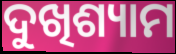
ଦୁଖିଶ୍ୟାମ